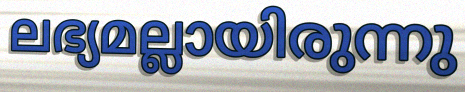
ലഭ്യമല്ലായിരുന്നു